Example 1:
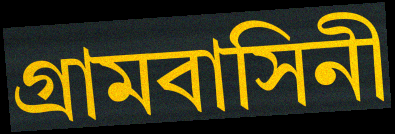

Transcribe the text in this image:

গ্রামবাসিনী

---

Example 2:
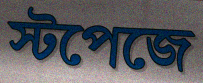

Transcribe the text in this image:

স্টপেজে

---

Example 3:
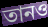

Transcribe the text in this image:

তানও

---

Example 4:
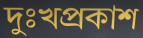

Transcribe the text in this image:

দুঃখপ্রকাশ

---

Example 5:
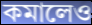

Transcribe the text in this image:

কমালেও